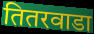
तितरवाडा